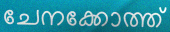
ചേനക്കോത്ത്